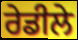
ਰੇਡੀਲੇ